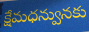
క్షేమధన్వునకు